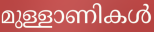
മുള്ളാണികൾ